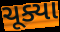
ચૂક્યા